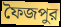
ফৈজপুর